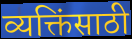
व्यक्तिंसाठी